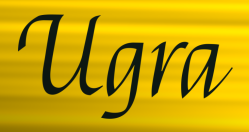
Ugra